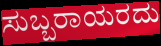
ಸುಬ್ಬರಾಯರದು